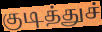
குடித்துச்